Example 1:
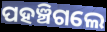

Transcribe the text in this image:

ପହଞ୍ଚିଗଲେ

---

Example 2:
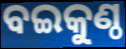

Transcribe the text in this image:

ବଇକୁଣ୍ଠ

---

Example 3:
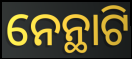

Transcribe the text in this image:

ନେନ୍ଥାଟି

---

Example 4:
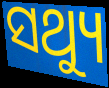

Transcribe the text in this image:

ସଥ୍ୟୁ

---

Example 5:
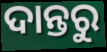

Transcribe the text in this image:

ଦାନ୍ତରୁ